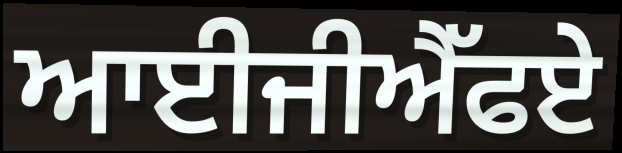
ਆਈਜੀਐੱਫਏ